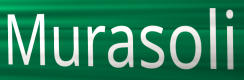
Murasoli